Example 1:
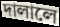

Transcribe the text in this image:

দালালে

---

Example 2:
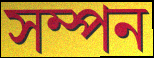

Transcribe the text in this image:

সম্পন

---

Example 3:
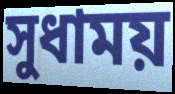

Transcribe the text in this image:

সুধাময়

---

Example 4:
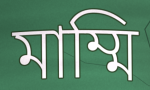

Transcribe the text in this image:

মাম্মি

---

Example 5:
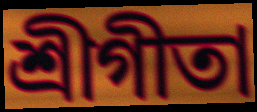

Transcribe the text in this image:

শ্রীগীতা